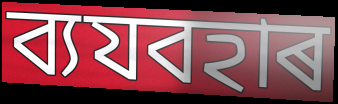
ব্যযবহাৰ